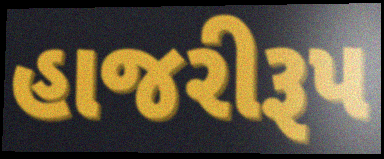
હાજરીરૂપ